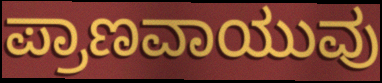
ಪ್ರಾಣವಾಯುವು